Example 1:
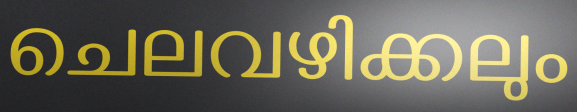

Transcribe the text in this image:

ചെലവഴിക്കലും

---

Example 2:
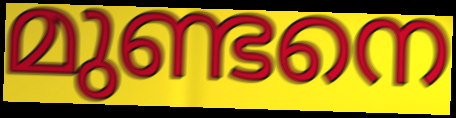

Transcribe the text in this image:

മുണ്ടനെ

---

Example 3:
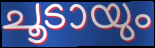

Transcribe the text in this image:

ചൂടായും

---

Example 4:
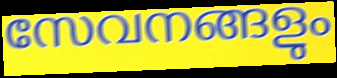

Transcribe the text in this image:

സേവനങ്ങളും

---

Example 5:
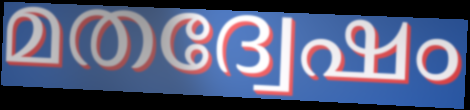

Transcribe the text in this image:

മതദ്വേഷം